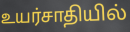
உயர்சாதியில்